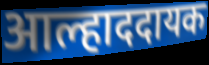
आल्हाददायक